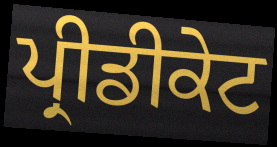
ਪ੍ਰੀਡੀਕੇਟ